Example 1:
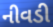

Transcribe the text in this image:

નીવડી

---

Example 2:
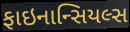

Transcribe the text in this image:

ફાઇનાન્સિયલ્સ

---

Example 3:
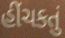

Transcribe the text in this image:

હીંચકતું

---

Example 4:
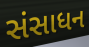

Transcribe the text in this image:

સંસાધન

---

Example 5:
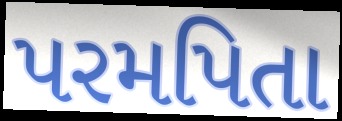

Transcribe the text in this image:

પરમપિતા